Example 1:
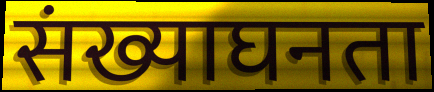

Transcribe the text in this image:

संख्याघनता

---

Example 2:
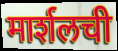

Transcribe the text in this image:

मार्शलची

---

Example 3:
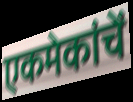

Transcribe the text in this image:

एकमेकांचें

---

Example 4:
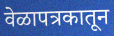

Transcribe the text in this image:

वेळापत्रकातून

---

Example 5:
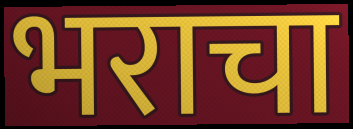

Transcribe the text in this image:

भराचा